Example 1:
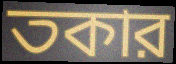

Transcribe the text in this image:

তকার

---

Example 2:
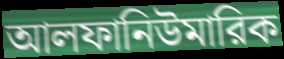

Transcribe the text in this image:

আলফানিউমারিক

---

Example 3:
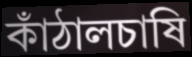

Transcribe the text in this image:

কাঁঠালচাষি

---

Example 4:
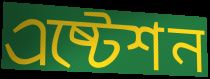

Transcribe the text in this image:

এষ্টেশন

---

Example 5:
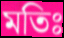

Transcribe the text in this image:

মতিঃ